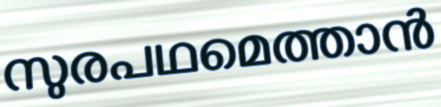
സുരപഥമെത്താൻ